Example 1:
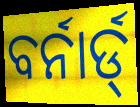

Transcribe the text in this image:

ବର୍ନାର୍ଡ୍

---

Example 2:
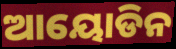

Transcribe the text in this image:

ଆୟୋଡିନ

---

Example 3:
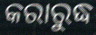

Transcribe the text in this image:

କରାରୁଦ୍ଧ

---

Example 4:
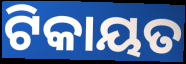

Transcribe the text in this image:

ଟିକାୟତ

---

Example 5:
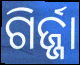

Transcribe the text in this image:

ଗିର୍ଜ୍ଜା